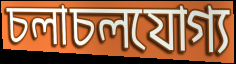
চলাচলযোগ্য